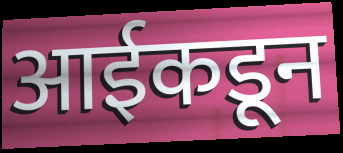
आईकडून